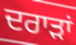
ਦਰਾੜਾਂ